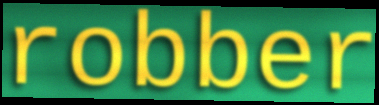
robber